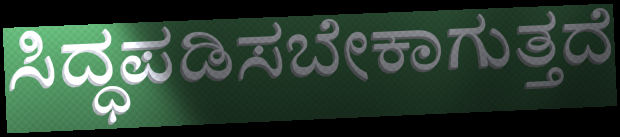
ಸಿದ್ಧಪಡಿಸಬೇಕಾಗುತ್ತದೆ